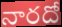
నారదో